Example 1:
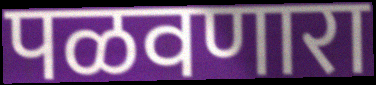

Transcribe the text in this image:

पळवणारा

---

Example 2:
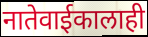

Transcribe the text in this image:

नातेवाईकालाही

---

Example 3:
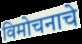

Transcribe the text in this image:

विमोचनाचे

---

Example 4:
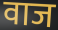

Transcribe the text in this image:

वाज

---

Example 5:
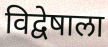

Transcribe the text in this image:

विद्वेषाला